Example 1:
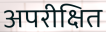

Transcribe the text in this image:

अपरीक्षित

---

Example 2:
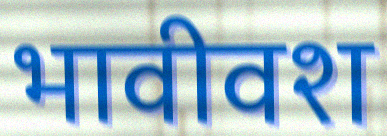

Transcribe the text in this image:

भावीवश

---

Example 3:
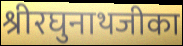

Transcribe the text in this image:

श्रीरघुनाथजीका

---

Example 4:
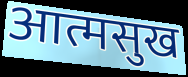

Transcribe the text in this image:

आत्मसुख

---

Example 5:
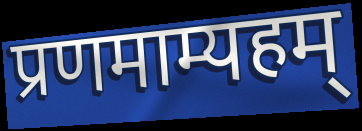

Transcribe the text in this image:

प्रणमाम्यहम्